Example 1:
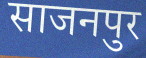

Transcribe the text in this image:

साजनपुर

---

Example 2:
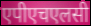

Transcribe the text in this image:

एपीएचएलसी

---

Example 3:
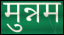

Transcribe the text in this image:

मुन्नम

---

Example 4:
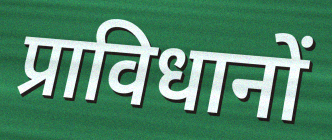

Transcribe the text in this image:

प्राविधानों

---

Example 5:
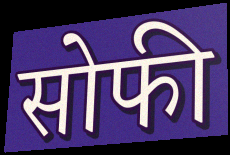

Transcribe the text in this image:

सोफी